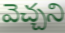
వెచ్చని